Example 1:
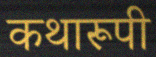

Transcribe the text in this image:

कथारूपी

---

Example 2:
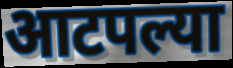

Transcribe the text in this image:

आटपल्या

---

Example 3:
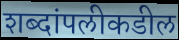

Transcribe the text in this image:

शब्दांपलीकडील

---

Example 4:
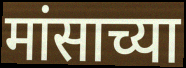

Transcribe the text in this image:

मांसाच्या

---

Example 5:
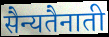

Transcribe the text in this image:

सैन्यतैनाती